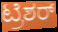
ಟ್ರೆಶರ್